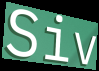
Siv